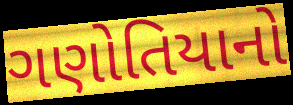
ગણોતિયાનો